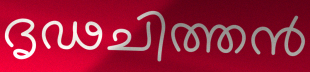
ദൃഢചിത്തൻ